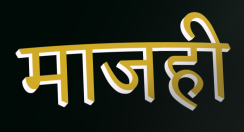
माजही